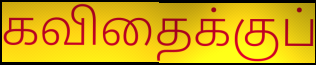
கவிதைக்குப்